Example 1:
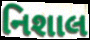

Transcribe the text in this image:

નિશાલ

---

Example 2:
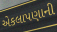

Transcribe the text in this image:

એકલાપણાની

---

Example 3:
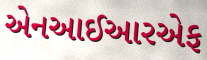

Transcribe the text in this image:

એનઆઈઆરએફ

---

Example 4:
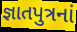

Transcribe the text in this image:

જ્ઞાતપુત્રનાં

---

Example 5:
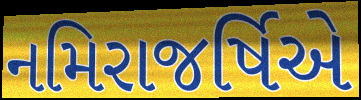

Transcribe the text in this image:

નમિરાજર્ષિએ